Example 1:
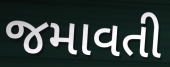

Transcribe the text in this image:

જમાવતી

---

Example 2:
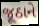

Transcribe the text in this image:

જૂઠાને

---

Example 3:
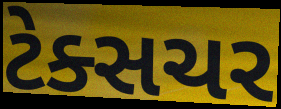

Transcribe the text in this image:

ટેક્સચર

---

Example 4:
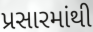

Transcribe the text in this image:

પ્રસારમાંથી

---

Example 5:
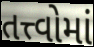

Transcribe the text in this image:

તત્ત્વોમાં